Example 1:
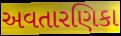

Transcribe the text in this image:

અવતારણિકા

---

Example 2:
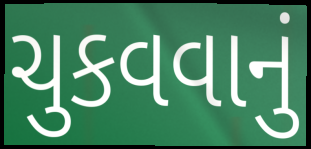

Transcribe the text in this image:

ચુકવવાનું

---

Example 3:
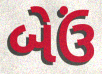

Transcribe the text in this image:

બેઉં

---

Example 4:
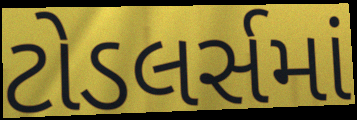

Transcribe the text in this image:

ટોડલર્સમાં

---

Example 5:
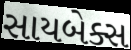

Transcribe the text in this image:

સાયબેક્સ